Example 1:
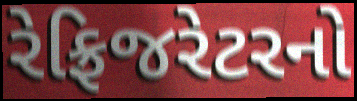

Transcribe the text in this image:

રેફ્રિજરેટરનો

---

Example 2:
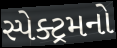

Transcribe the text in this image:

સ્પેક્ટ્રમનો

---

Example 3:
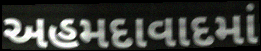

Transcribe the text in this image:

અહમદાવાદમાં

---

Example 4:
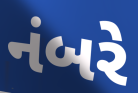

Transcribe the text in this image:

નંબરે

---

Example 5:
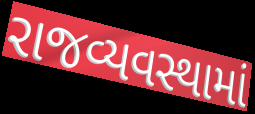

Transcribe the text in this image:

રાજવ્યવસ્થામાં